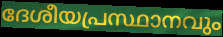
ദേശീയപ്രസ്ഥാനവും